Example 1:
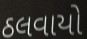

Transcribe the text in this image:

ઠલવાયો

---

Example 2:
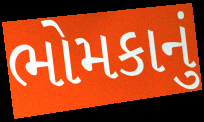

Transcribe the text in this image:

ભોમકાનું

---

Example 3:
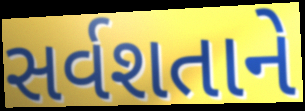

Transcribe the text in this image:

સર્વશતાને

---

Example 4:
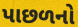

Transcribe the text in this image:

પાછળનો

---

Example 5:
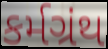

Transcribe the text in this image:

કર્મગ્રંથ